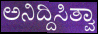
ಅನಿದ್ದಿಸಿತ್ವಾ